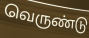
வெருண்டு